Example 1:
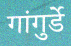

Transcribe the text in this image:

गांगुर्डे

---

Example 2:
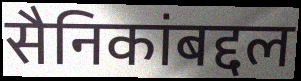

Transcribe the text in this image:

सैनिकांबद्दल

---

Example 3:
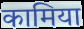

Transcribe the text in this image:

कामिया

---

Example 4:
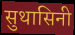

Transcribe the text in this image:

सुथासिनी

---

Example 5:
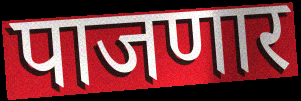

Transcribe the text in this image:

पाजणार